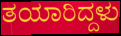
ತಯಾರಿದ್ದಳು